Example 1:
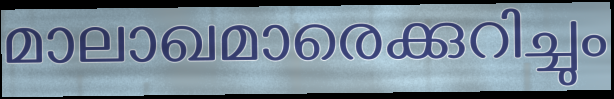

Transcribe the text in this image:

മാലാഖമാരെക്കുറിച്ചും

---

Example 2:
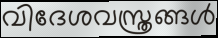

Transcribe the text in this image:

വിദേശവസ്ത്രങ്ങൾ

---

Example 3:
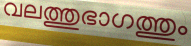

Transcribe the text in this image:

വലത്തുഭാഗത്തും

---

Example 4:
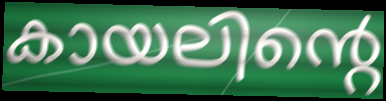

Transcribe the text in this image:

കായലിന്റെ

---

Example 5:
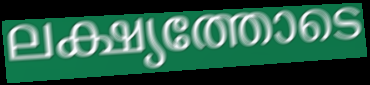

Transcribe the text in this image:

ലക്ഷ്യത്തോടെ